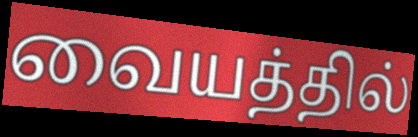
வையத்தில்